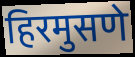
हिरमुसणे